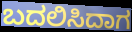
ಬದಲಿಸಿದಾಗ